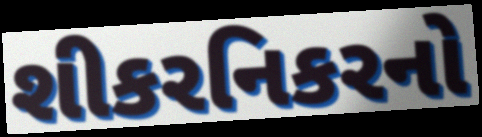
શીકરનિકરનો